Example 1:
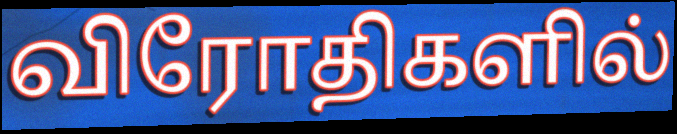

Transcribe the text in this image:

விரோதிகளில்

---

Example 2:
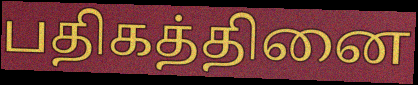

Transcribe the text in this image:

பதிகத்தினை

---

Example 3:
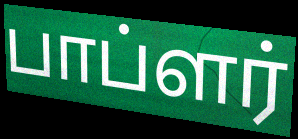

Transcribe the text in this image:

பாப்ளர்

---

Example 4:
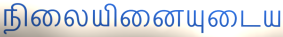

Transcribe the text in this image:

நிலையினையுடைய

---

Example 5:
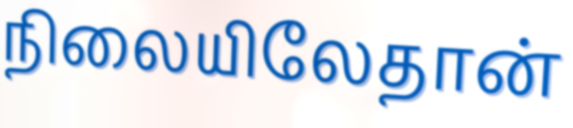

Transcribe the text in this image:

நிலையிலேதான்